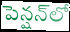
పెన్షన్‌లో